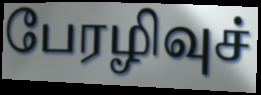
பேரழிவுச்